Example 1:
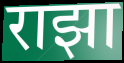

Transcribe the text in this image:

राझा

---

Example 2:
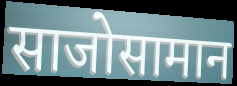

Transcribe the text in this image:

साजोसामान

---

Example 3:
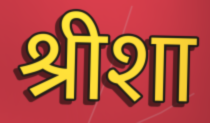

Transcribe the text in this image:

श्रीशा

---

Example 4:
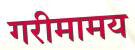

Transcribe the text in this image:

गरीमामय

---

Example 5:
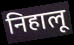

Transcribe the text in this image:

निहालू